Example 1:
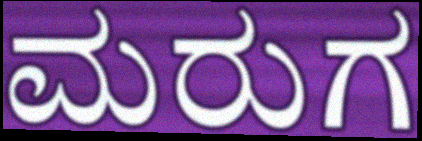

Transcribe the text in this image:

ಮರುಗ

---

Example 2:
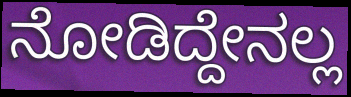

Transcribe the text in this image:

ನೋಡಿದ್ದೇನಲ್ಲ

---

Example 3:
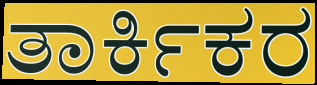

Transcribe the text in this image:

ತಾರ್ಕಿಕರ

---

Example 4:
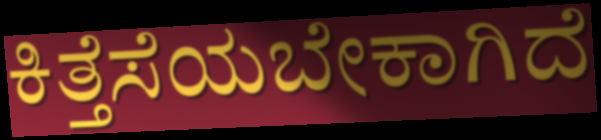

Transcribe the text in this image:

ಕಿತ್ತೆಸೆಯಬೇಕಾಗಿದೆ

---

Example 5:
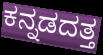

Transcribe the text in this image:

ಕನ್ನಡದತ್ತ